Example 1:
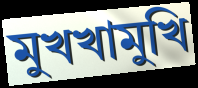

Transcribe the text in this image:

মুখখামুখি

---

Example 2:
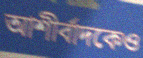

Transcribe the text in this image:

আশীর্বাদকেও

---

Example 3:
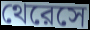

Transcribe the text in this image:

থেরেসে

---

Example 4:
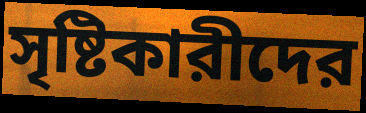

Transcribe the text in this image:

সৃষ্টিকারীদের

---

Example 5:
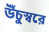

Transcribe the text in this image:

উঁচুস্বরে